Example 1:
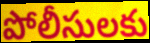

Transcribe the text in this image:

పోలీసులకు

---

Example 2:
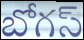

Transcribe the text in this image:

బోగస్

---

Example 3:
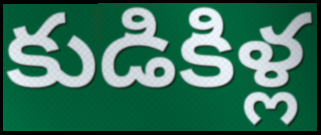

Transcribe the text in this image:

కుడికిళ్ల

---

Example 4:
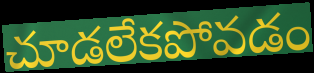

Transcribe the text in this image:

చూడలేకపోవడం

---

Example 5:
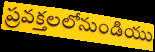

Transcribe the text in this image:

ప్రవక్తలలోనుండియు